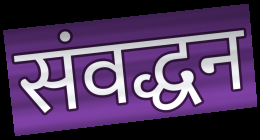
संवद्धन